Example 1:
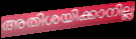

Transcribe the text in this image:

അതിശയിക്കാനില്ല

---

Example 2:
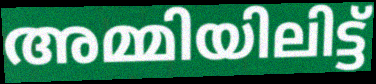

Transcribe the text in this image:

അമ്മിയിലിട്ട്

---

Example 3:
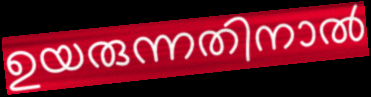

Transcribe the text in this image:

ഉയരുന്നതിനാൽ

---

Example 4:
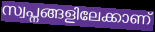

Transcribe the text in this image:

സ്വപ്നങ്ങളിലേക്കാണ്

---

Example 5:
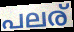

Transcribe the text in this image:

പലര്